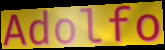
Adolfo